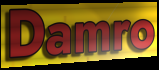
Damro